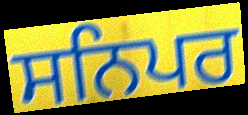
ਸਨਿਪਰ